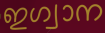
ഇഗ്വാന